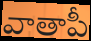
వాతాపీ